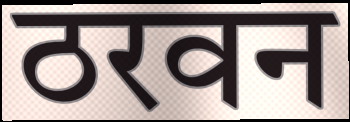
ठरवन